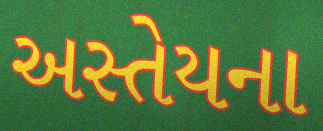
અસ્તેયના